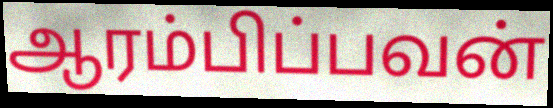
ஆரம்பிப்பவன்